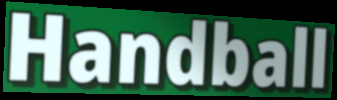
Handball